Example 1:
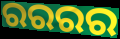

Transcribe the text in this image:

ରରରର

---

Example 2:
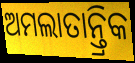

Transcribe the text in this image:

ଅମଲାତାନ୍ତ୍ରିକ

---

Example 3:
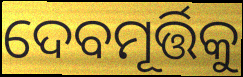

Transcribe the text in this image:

ଦେବମୂର୍ତ୍ତିକୁ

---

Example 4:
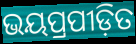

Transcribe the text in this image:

ଭୟପ୍ରପୀଡ଼ିତ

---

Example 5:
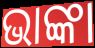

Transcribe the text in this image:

ଭାଙ୍କା